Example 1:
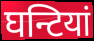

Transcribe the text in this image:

घन्टियां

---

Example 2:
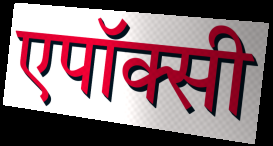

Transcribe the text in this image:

एपॉक्सी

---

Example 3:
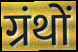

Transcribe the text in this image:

ग्रंथों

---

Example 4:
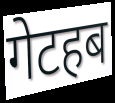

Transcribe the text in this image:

गेटहब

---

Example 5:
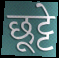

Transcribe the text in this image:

छूट्टे